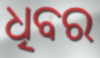
ଧିବର